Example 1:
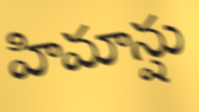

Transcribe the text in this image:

హిమాన్షు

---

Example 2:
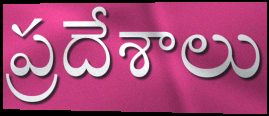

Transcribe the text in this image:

ప్రదేశాలు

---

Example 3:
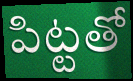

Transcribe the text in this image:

పిట్టతో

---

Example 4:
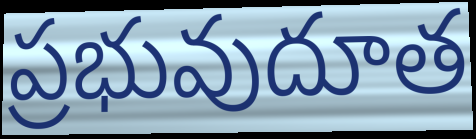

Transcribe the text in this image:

ప్రభువుదూత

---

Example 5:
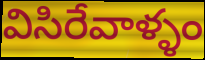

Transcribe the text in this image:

విసిరేవాళ్ళం